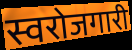
स्वरोजगारी